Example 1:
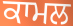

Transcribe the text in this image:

ਕਾਮਲ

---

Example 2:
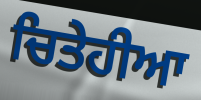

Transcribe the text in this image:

ਚਿਤੇਹੀਆ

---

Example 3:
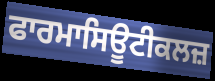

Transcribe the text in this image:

ਫਾਰਮਾਸਿਊਟੀਕਲਜ਼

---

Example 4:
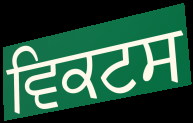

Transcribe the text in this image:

ਵਿਕਟਸ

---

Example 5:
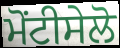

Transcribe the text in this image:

ਮੋਂਟੀਸੇਲੋ